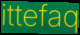
ittefaq